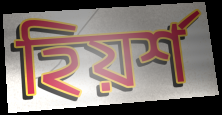
হিয়র্শ